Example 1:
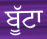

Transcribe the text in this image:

ਬੂੱਟਾ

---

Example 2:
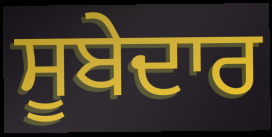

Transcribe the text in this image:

ਸੂਬੇਦਾਰ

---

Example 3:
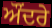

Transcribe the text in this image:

ਔਂਦਰੇ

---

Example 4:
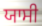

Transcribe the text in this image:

ਯਾਸੀ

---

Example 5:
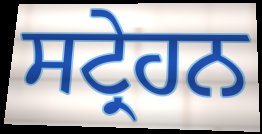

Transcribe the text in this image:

ਸਟ੍ਰੇਹਨ